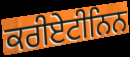
ਕਰੀਏਟੀਨਿਨ